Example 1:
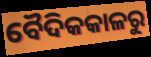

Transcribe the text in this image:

ବୈଦିକକାଳରୁ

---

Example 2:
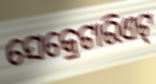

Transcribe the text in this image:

ସେକ୍ରେଟାରିଏଟ୍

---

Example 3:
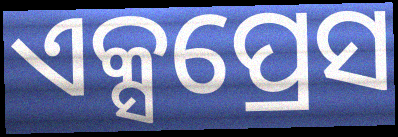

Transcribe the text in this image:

ଏକ୍ସପ୍ରେସ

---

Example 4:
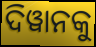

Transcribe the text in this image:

ଦିୱାନକୁ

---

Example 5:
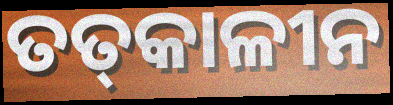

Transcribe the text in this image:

ତତ୍‍କାଳୀନ